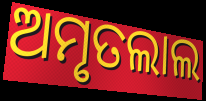
ଅମୃତଲାଲ